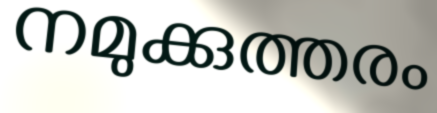
നമുക്കുത്തരം